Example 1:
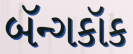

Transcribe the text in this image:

બૅન્ગકૉક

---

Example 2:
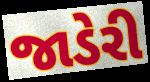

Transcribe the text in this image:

જાડેરી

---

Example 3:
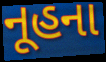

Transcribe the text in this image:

નૂહના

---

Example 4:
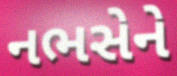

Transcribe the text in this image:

નભસેને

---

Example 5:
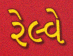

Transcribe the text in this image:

રેલ્વે